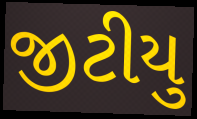
જીટીયુ